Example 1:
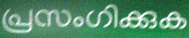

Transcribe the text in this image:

പ്രസംഗിക്കുക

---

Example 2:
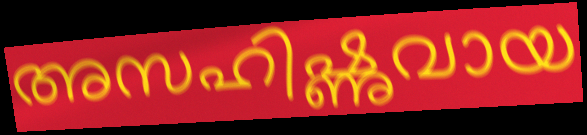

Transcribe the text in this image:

അസഹിഷ്ണുവായ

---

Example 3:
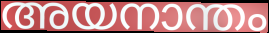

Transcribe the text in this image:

അയനാന്തം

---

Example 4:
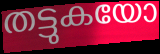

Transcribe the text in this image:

തട്ടുകയോ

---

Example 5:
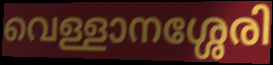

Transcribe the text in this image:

വെള്ളാനശ്ശേരി